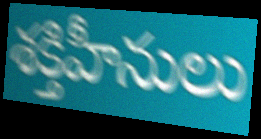
శక్తిహీనులు